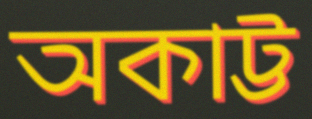
অকাট্ট